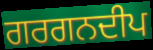
ਗਰਗਨਦੀਪ